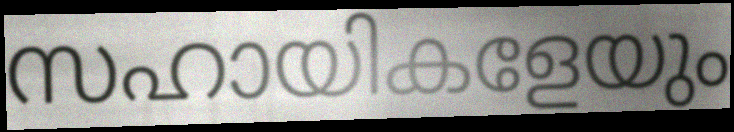
സഹായികളേയും